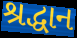
શ્રદ્ધાન